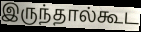
இருந்தால்கூட